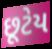
છૂટેય